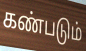
கண்படும்